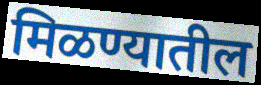
मिळण्यातील